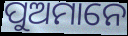
ପୁଅମାନେ